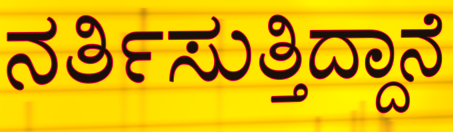
ನರ್ತಿಸುತ್ತಿದ್ದಾನೆ